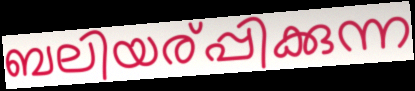
ബലിയര്പ്പിക്കുന്ന